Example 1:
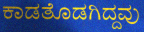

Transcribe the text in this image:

ಕಾಡತೊಡಗಿದ್ದವು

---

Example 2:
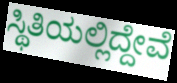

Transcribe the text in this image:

ಸ್ಥಿತಿಯಲ್ಲಿದ್ದೇವೆ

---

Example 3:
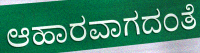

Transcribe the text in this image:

ಆಹಾರವಾಗದಂತೆ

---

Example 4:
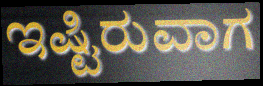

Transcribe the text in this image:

ಇಷ್ಟಿರುವಾಗ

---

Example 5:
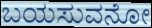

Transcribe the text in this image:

ಬಯಸುವನೋ